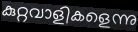
കുറ്റവാളികളെന്നു